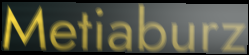
Metiaburz